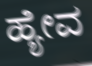
ಹ್ಯೇವ